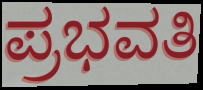
ಪ್ರಭವತಿ